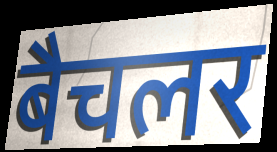
बैचलर